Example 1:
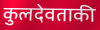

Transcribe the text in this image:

कुलदेवताकी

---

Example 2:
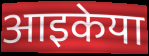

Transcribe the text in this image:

आइकेया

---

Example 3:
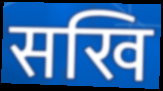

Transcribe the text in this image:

सखि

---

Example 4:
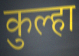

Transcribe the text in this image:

कुल्हा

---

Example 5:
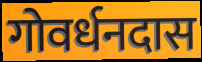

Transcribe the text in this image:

गोवर्धनदास